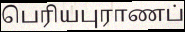
பெரியபுராணப்